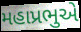
મહાપ્રભુએ